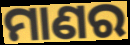
ମାଣର